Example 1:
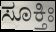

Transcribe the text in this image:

ಸೂಕ್ತಿಃ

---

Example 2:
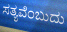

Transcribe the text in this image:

ಸತ್ಯವೆಂಬುದು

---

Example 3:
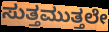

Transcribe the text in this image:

ಸುತ್ತಮುತ್ತಲೇ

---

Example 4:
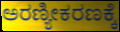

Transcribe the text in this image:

ಅರಣ್ಯೀಕರಣಕ್ಕೆ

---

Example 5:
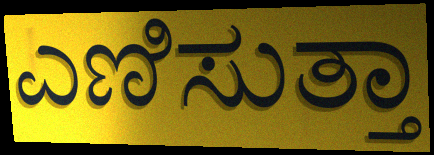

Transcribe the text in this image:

ಎಣಿಸುತ್ತಾ